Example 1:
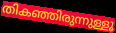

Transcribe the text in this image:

തികഞ്ഞിരുന്നുള്ളൂ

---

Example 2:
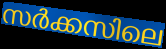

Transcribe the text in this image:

സർക്കസിലെ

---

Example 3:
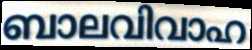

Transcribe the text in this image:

ബാലവിവാഹ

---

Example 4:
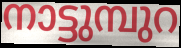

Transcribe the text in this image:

നാട്ടുമ്പുറ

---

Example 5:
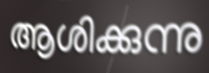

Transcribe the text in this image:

ആശിക്കുന്നു